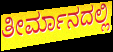
ತೀರ್ಮಾನದಲ್ಲಿ